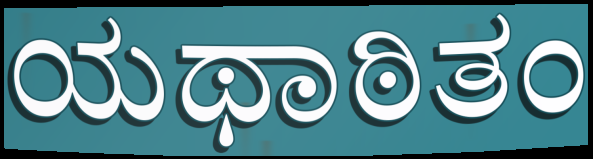
ಯಥಾಠಿತಂ